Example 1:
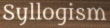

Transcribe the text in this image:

Syllogism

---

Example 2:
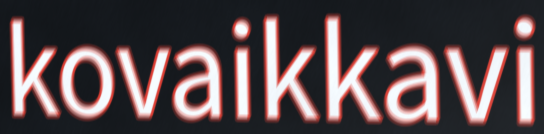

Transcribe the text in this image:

kovaikkavi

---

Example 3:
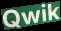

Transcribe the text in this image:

Qwik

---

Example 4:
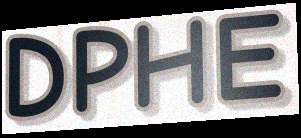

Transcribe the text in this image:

DPHE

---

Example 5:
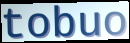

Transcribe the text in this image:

tobuo